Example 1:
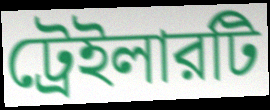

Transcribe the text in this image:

ট্রেইলারটি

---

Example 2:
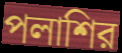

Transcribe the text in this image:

পলাশির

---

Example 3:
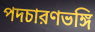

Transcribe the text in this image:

পদচারণভঙ্গি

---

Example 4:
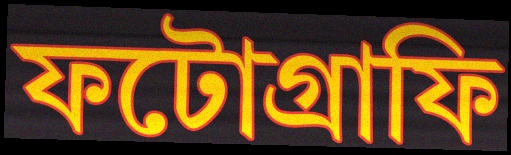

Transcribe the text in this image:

ফটোগ্রাফি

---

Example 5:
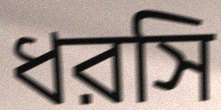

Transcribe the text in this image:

ধরসি